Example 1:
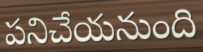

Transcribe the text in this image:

పనిచేయనుంది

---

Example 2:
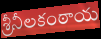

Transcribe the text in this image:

శ్రీనీలకంఠాయ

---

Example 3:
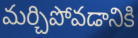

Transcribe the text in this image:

మర్చిపోవడానికి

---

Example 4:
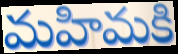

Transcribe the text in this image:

మహిమకి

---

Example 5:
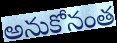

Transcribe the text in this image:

అనుకోనంత